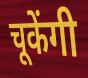
चूकेंगी